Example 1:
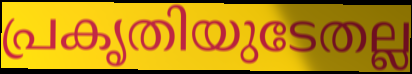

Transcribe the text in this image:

പ്രകൃതിയുടേതല്ല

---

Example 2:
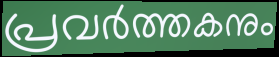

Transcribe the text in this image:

പ്രവർത്തകനും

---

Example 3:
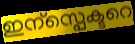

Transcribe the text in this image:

ഇന്സ്പെക്ടറെ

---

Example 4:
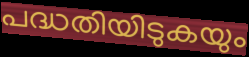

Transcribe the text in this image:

പദ്ധതിയിടുകയും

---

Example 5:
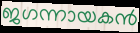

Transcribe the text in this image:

ജഗന്നായകൻ